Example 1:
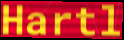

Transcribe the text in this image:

Hartl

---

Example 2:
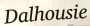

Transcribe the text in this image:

Dalhousie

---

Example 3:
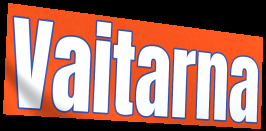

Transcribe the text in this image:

Vaitarna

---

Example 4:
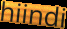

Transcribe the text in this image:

hiindi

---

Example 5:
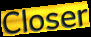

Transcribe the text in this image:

Closer